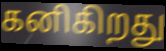
கனிகிறது